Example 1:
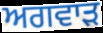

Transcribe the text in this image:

ਅਗਵਾੜ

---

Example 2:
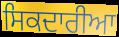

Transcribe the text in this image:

ਸਿਕਦਾਰੀਆ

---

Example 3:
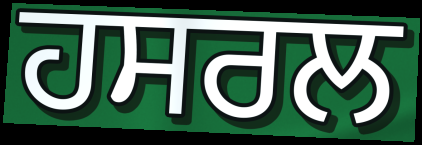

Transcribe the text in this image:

ਹਸਰਲ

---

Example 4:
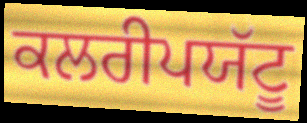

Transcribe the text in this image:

ਕਲਰੀਪਯੱਟੂ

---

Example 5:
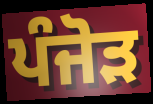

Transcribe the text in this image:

ਪੰਜੋੜ